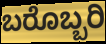
ಬರೊಬ್ಬರಿ